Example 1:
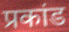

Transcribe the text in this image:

प्रकांड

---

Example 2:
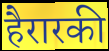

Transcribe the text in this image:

हैरारकी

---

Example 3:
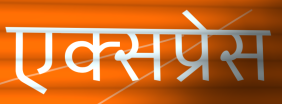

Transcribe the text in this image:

एक्‍सप्रेस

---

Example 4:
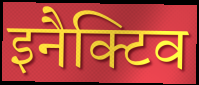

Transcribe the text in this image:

इनैक्टिव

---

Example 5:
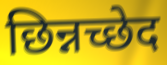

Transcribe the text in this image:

छिन्नच्छेद